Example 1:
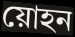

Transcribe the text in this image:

য়োহন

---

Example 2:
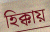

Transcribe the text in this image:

হিক্কায়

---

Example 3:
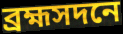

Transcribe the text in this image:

ব্রহ্মসদনে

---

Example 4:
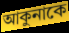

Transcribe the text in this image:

আকুনাকে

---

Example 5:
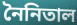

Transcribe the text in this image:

নৈনিতাল